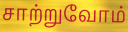
சாற்றுவோம்